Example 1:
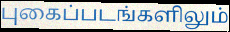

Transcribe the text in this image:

புகைப்படங்களிலும்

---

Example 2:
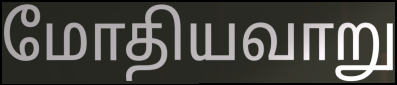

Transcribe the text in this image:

மோதியவாறு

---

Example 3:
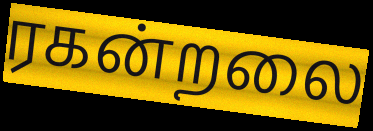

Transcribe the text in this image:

ரகன்றலை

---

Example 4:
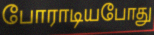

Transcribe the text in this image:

போராடியபோது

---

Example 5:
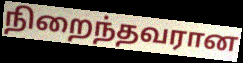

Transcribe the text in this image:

நிறைந்தவரான